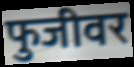
फुजीवर